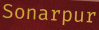
Sonarpur